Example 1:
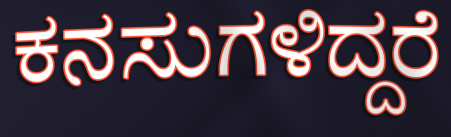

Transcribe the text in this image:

ಕನಸುಗಳಿದ್ದರೆ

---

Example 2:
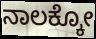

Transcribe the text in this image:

ನಾಲಕ್ಕೋ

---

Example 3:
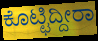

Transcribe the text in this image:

ಕೊಟ್ಟಿದ್ದೀರಾ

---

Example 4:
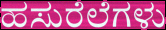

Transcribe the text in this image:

ಹಸುರೆಲೆಗಳು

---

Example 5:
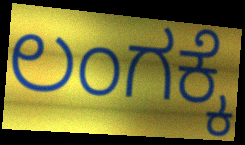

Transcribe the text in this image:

ಲಂಗಕ್ಕೆ